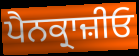
ਪੈਨਕ੍ਰਾਜ਼ੀਓ